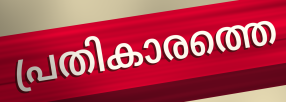
പ്രതികാരത്തെ